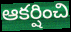
ఆకర్షించి